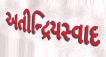
અતીન્દ્રિયસ્વાદ